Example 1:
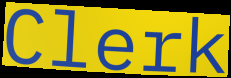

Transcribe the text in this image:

Clerk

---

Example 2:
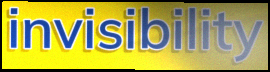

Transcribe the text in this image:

invisibility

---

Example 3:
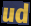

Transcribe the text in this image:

ud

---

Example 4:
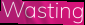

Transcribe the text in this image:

Wasting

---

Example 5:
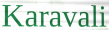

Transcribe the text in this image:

Karavali